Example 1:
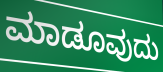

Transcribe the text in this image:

ಮಾಡೂವುದು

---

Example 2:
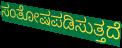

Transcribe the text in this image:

ಸಂತೋಷಪಡಿಸುತ್ತದೆ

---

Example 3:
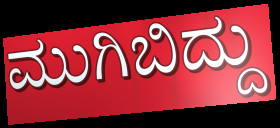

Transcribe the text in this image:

ಮುಗಿಬಿದ್ದು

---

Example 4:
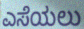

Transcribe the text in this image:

ಎಸೆಯಲು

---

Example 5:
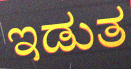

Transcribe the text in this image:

ಇಡುತ